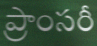
ప్రాంసరీ